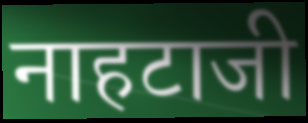
नाहटाजी